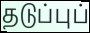
தடுப்புப்